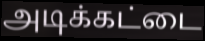
அடிக்கட்டை